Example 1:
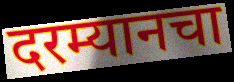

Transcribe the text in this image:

दरम्यानचा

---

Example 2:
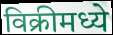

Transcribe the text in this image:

विक्रीमध्ये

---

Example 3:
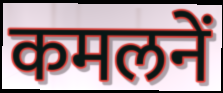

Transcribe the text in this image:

कमलनें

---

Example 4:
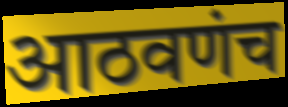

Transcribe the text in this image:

आठवणंच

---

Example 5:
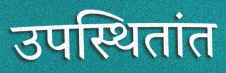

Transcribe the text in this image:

उपस्थितांत